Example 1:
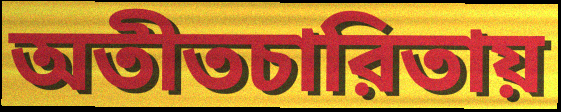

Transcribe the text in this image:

অতীতচারিতায়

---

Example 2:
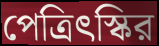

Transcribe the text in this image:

পেত্রিৎস্কির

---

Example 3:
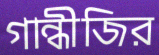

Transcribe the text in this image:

গান্ধীজির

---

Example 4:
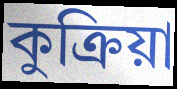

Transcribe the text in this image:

কুক্রিয়া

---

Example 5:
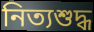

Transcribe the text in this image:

নিত্যশুদ্ধ